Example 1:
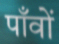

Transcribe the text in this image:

पाँवों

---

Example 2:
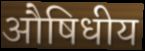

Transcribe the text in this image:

औषिधीय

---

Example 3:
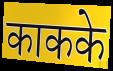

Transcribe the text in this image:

काकके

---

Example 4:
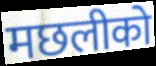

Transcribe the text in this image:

मछलीको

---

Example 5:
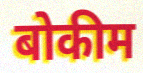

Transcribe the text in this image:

बोकीम